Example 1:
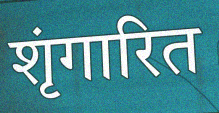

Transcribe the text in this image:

शृंगारित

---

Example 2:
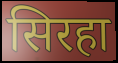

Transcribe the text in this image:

सिरहा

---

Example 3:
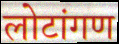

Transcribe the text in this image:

लोटांगण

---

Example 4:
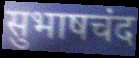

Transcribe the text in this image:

सुभाषचंद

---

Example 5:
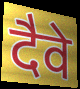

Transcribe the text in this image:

दैवे